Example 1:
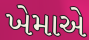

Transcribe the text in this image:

ખેમાએ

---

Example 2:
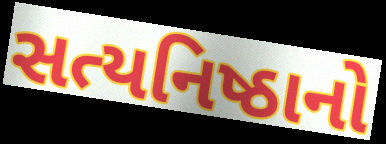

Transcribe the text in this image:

સત્યનિષ્ઠાનો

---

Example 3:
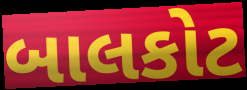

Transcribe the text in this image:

બાલકોટ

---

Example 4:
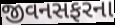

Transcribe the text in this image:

જીવનસફરના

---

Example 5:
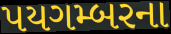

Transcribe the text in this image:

પયગમ્બરના